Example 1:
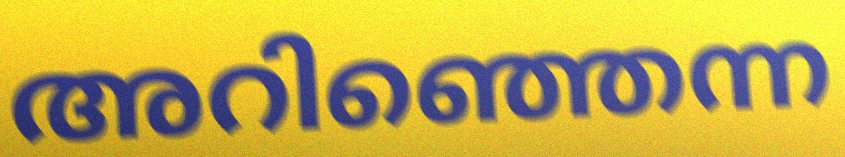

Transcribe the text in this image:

അറിഞ്ഞെന്ന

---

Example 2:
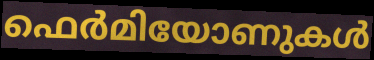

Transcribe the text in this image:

ഫെർമിയോണുകൾ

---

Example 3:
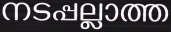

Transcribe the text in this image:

നടപ്പല്ലാത്ത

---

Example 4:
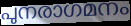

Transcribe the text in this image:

പുനരാഗമനം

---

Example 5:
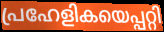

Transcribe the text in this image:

പ്രഹേളികയെപ്പറ്റി